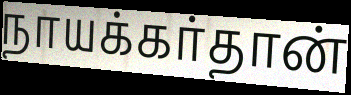
நாயக்கர்தான்